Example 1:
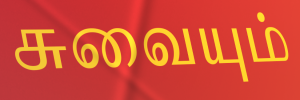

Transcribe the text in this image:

சுவையும்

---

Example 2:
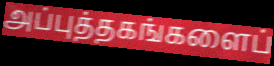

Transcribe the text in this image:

அப்புத்தகங்களைப்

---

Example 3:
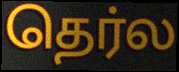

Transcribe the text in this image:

தெர்ல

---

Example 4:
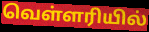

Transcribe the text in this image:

வெள்ளரியில்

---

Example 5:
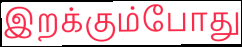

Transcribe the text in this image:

இறக்கும்போது